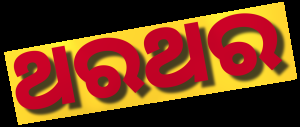
ଥରଥର